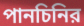
পানচিনির